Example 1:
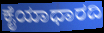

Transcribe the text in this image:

ಕೈಯಾಧಾರದಿ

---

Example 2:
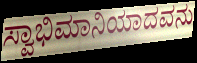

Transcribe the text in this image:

ಸ್ವಾಭಿಮಾನಿಯಾದವನು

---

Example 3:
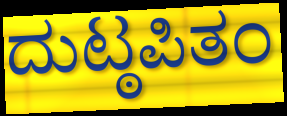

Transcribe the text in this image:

ದುಟ್ಠಪಿತಂ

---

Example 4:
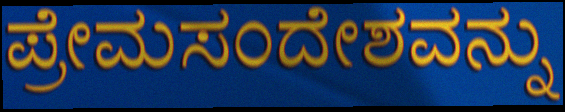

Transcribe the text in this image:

ಪ್ರೇಮಸಂದೇಶವನ್ನು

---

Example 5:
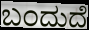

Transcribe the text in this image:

ಬಂದುದೆ